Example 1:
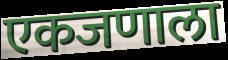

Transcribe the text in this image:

एकजणाला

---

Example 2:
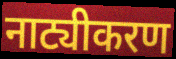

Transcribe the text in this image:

नाट्यीकरण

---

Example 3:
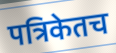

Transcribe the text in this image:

पत्रिकेतच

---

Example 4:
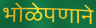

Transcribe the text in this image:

भोळेपणाने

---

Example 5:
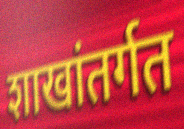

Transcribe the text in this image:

शाखांतर्गत